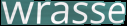
wrasse